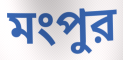
মংপুর